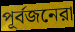
পূর্বজনেরা